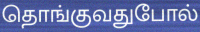
தொங்குவதுபோல்